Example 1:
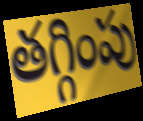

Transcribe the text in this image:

తగ్గింపు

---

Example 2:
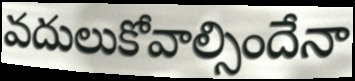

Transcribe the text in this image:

వదులుకోవాల్సిందేనా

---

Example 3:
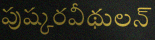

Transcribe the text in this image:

పుష్కరవీథులన్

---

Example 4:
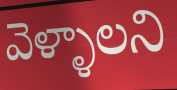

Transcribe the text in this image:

వెళ్ళాలని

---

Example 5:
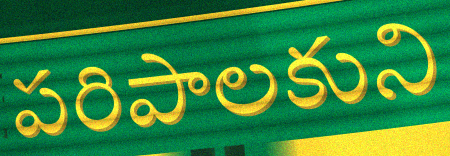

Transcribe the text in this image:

పరిపాలకుని